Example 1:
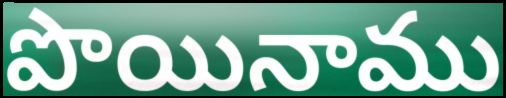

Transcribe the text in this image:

పొయినాము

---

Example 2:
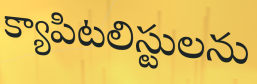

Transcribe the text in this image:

క్యాపిటలిస్టులను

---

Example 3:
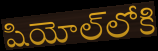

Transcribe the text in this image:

షియోల్‌లోకి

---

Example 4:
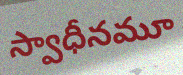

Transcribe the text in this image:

స్వాధీనమూ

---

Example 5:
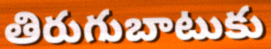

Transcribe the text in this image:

తిరుగుబాటుకు